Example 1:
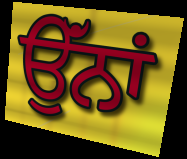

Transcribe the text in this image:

ਉਂੱਨਾਂ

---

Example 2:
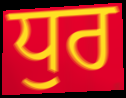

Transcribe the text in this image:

ਧੁਰ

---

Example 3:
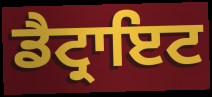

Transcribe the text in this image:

ਡੈਟ੍ਰਾਇਟ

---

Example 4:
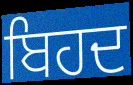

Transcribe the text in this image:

ਬਿਹਦ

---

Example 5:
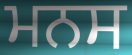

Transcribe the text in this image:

ਮਨਸ